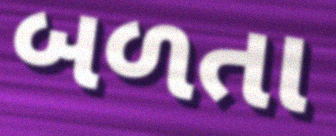
બળતા